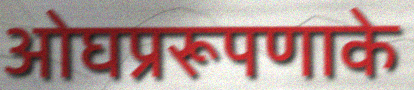
ओघप्ररूपणाके